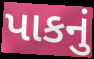
પાકનું